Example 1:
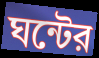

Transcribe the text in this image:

ঘন্টের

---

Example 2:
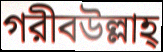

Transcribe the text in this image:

গরীবউল্লাহ্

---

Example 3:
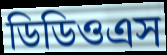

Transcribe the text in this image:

ডিডিওএস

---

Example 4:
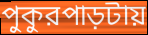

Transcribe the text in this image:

পুকুরপাড়টায়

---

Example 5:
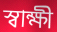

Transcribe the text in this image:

স্বাক্ষী